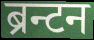
ब्रन्टन